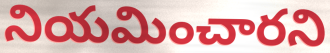
నియమించారని